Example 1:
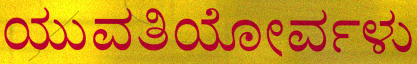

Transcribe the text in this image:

ಯುವತಿಯೋರ್ವಳು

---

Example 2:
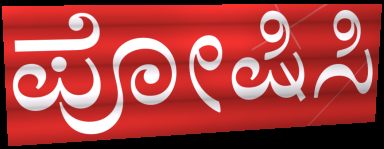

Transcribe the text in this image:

ಪೋಷಿಸಿ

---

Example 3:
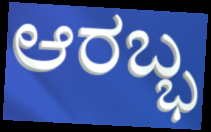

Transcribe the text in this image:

ಆರಬ್ಭ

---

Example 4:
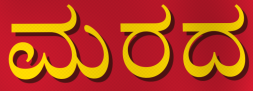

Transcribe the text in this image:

ಮರದ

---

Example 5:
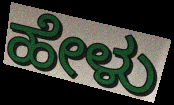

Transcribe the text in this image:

ಹೇಳು